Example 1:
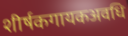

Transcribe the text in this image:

शीर्षकगायकअवधि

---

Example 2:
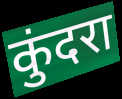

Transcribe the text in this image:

कुंदरा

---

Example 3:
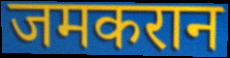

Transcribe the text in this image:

जमकरान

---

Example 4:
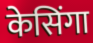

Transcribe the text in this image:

केसिंगा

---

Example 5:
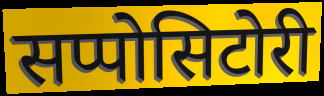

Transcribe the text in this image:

सप्पोसिटोरी